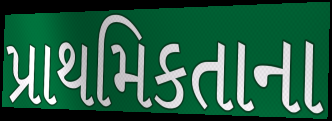
પ્રાથમિકતાના